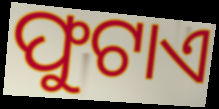
ଫୁଟାଏ